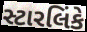
સ્ટારલિંકે